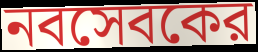
নবসেবকের